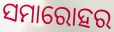
ସମାରୋହର